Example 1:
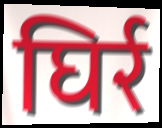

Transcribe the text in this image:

घिर्र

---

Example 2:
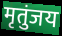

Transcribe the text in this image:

मृतुंजय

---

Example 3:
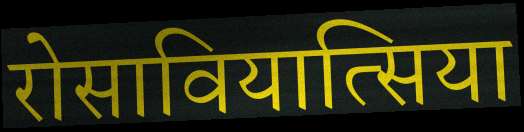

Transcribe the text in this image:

रोसावियात्सिया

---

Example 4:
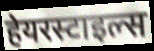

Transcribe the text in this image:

हेयरस्टाइल्स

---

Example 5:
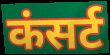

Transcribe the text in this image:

कंसर्ट